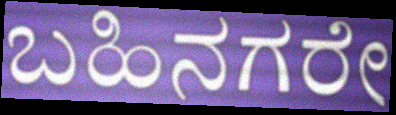
ಬಹಿನಗರೇ